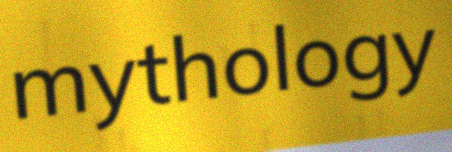
mythology